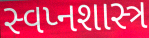
સ્વપ્નશાસ્ત્ર